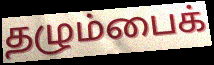
தழும்பைக்